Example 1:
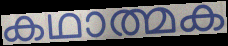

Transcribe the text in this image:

കഥാത്മക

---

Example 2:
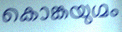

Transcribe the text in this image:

കൊങ്കയുഗ്മം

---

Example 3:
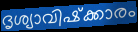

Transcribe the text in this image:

ദൃശ്യാവിഷ്‌ക്കാരം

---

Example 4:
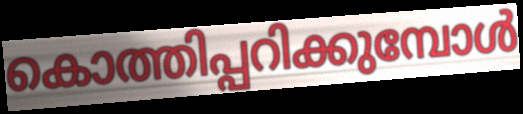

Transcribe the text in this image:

കൊത്തിപ്പറിക്കുമ്പോൾ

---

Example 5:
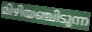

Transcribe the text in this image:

മിഴിയഞ്ചിടുന്ന